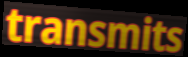
transmits